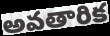
అవతారిక